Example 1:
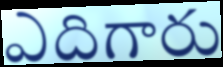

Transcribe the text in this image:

ఎదిగారు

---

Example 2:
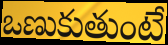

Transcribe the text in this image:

ఒణుకుతుంటే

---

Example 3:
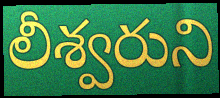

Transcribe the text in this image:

లీశ్వరుని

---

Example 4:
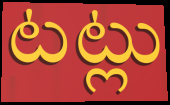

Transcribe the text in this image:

టట్లు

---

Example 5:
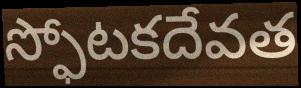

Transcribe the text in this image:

స్ఫోటకదేవత